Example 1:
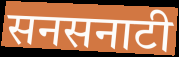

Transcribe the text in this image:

सनसनाटी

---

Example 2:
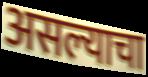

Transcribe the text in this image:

असल्‍याचा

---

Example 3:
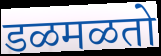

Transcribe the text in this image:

डळमळतो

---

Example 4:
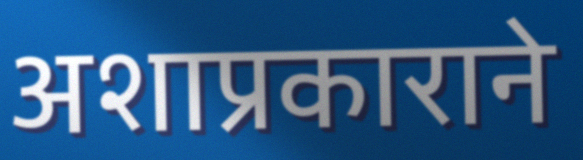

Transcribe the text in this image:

अशाप्रकाराने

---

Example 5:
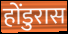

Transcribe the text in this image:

होंडुरास